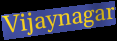
Vijaynagar